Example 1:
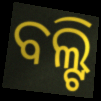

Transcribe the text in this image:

ବଲ୍ଟି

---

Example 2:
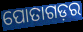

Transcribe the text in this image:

ପୋତାଗଡ଼ର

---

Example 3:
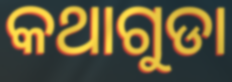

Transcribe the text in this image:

କଥାଗୁଡା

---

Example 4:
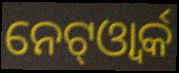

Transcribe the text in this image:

ନେଟ୍ଓ୍ବାର୍କ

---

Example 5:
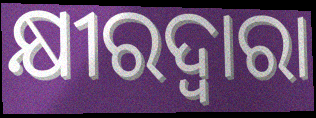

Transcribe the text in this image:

କ୍ଷୀରଦ୍ଵାରା